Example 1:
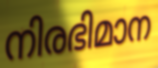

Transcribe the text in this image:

നിരഭിമാന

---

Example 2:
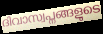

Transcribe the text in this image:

ദിവാസ്വപ്നങ്ങളുടെ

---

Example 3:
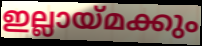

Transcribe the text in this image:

ഇല്ലായ്മക്കും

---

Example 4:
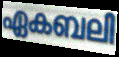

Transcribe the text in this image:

ഏകബലി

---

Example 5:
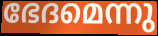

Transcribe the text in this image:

ഭേദമെന്നു